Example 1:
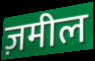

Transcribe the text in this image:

ज़मील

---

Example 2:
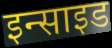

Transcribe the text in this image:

इन्साइड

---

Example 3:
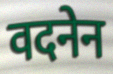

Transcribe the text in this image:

वदनेन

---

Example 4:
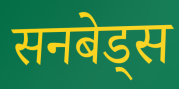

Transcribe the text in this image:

सनबेड्स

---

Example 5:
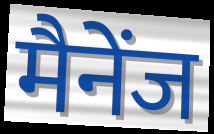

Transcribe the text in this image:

मैनेंज